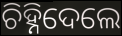
ଚିହ୍ନିଦେଲେ